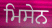
ਮਿਸੇਨ